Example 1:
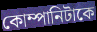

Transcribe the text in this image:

কোম্পানিটাকে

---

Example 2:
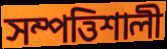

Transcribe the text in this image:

সম্পত্তিশালী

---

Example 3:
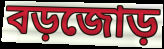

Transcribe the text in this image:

বড়জোড়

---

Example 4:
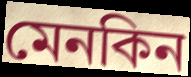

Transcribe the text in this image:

মেনকিন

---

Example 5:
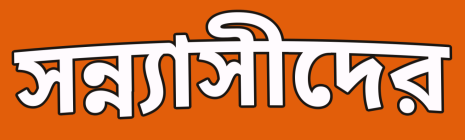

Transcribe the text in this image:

সন্ন্যাসীদের